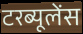
टरब्यूलेंस